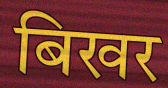
बिखर